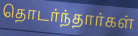
தொடர்ந்தார்கள்